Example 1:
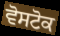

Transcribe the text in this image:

ਵੋਸਟੋਕ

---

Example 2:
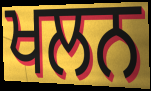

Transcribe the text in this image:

ਖਲਨ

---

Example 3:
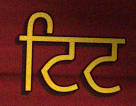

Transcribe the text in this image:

ਟਿਟ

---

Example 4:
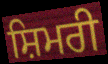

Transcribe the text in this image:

ਸ਼ਿਮਰੀ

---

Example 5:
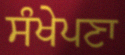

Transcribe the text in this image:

ਸੰਖੇਪਣਾ